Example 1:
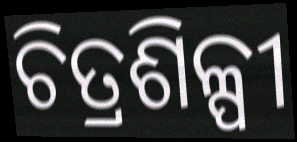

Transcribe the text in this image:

ଚିତ୍ରଶିଳ୍ପୀ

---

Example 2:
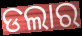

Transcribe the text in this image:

ଡଲାର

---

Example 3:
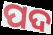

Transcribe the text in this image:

ପଦ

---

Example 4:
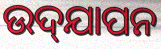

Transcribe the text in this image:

ଉଦ୍‌ଯାପନ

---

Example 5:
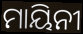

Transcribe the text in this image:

ମାୟିନୀ